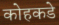
कोहकडे